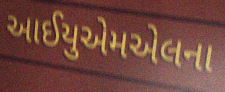
આઈયુએમએલના